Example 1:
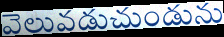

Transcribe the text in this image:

వెలువడుచుండును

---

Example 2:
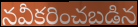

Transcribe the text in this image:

నవీకరించబడిన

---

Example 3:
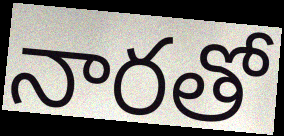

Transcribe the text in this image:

నారతో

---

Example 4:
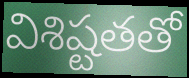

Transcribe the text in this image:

విశిష్టతతో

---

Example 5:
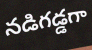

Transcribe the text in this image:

నడిగడ్డగా